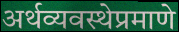
अर्थव्यवस्थेप्रमाणे